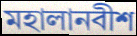
মহালানবীশ